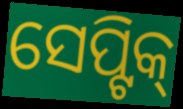
ସେପ୍ଟିକ୍